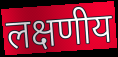
लक्षणीय